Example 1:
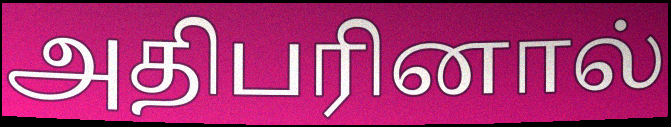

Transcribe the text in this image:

அதிபரினால்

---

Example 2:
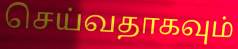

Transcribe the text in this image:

செய்வதாகவும்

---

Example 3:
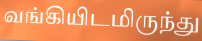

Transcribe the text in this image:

வங்கியிடமிருந்து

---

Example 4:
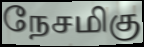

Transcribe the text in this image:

நேசமிகு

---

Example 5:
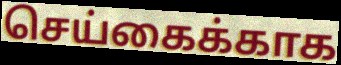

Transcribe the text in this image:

செய்கைக்காக